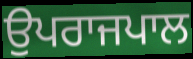
ਉਪਰਾਜਪਾਲ